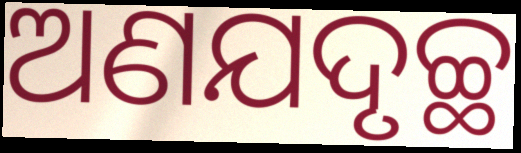
ଅଣଯଦୃଚ୍ଛ